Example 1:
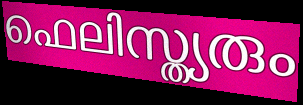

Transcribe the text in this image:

ഫെലിസ്ത്യരും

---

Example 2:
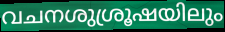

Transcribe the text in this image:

വചനശുശ്രൂഷയിലും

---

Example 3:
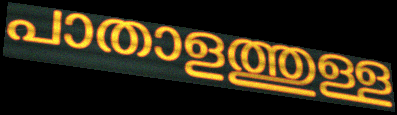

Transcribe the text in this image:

പാതാളത്തുള്ള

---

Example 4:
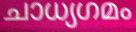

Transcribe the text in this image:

ചാധ്യഗമം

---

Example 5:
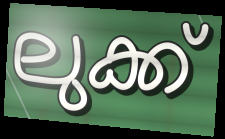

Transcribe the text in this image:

ലുക്ക്